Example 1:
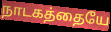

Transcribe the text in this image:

நாடகத்தையே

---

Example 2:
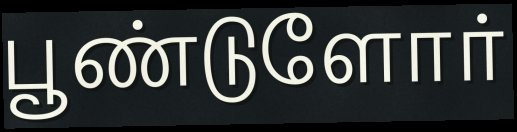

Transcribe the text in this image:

பூண்டுளோர்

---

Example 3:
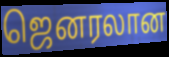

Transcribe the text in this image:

ஜெனரலான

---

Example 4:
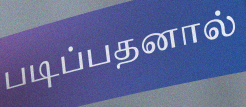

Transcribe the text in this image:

படிப்பதனால்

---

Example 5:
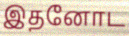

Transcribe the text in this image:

இதனோட